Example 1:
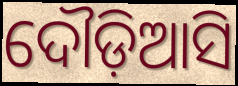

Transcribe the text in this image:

ଦୌଡ଼ିଆସି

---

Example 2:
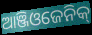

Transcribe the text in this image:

ଆଞ୍ଜିଓଜେନିକ୍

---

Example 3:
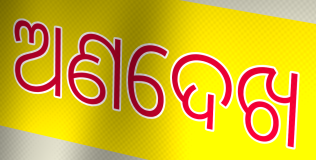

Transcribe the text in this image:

ଅଣଦେଖ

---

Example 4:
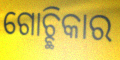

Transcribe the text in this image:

ଗୋଚ୍ଛିକାର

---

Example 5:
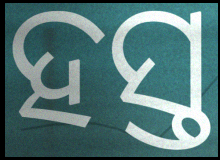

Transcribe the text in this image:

ହସ୍ତ